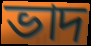
ভাদ